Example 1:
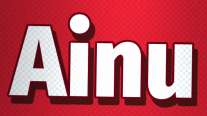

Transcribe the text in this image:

Ainu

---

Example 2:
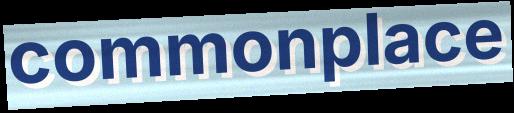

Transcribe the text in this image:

commonplace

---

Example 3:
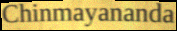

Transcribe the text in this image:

Chinmayananda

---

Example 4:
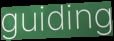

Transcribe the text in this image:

guiding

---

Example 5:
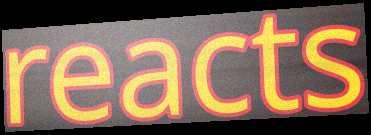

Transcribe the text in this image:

reacts